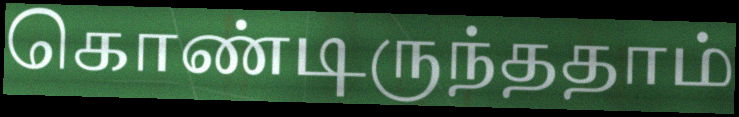
கொண்டிருந்ததாம்